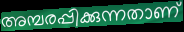
അമ്പരപ്പിക്കുന്നതാണ്